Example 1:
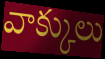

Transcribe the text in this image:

వాక్కులు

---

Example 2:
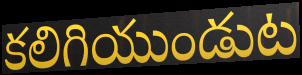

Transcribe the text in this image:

కలిగియుండుట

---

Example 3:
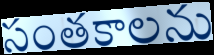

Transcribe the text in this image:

సంతకాలను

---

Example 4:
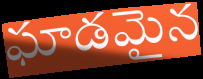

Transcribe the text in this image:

ఘాడమైన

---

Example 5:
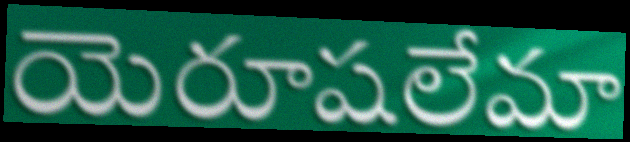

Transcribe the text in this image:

యెరూషలేమా